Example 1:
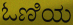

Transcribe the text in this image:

ಓಣಿಯ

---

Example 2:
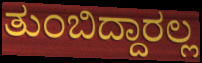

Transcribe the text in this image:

ತುಂಬಿದ್ದಾರಲ್ಲ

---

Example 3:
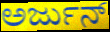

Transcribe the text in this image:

ಅರ್ಜುನ್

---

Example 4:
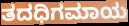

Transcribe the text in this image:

ತದಧಿಗಮಾಯ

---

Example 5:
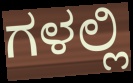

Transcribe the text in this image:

ಗಳಲ್ಲಿ